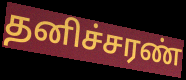
தனிச்சரண்